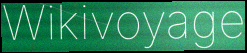
Wikivoyage